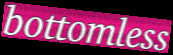
bottomless